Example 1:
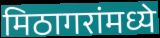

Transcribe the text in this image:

मिठागरांमध्ये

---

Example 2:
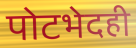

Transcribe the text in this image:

पोटभेदही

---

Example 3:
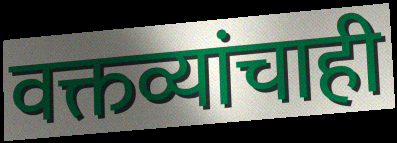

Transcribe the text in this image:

वक्तव्यांचाही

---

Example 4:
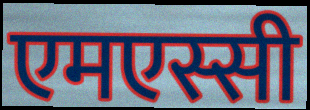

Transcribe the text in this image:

एमएस्सी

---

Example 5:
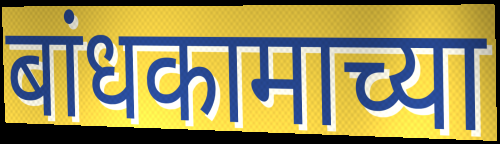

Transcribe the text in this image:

बांधकामाच्या